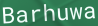
Barhuwa